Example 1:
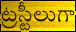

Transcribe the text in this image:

ట్రస్టీలుగా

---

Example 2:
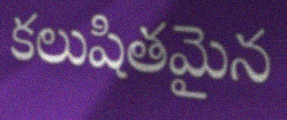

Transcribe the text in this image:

కలుషితమైన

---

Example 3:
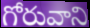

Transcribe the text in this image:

గోరువాని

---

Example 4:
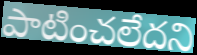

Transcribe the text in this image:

పాటించలేదని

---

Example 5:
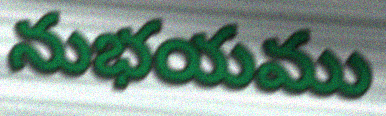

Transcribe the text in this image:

నుభయము